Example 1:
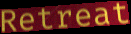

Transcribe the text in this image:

Retreat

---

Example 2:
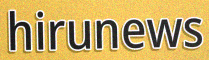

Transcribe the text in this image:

hirunews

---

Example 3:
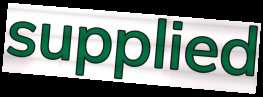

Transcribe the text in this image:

supplied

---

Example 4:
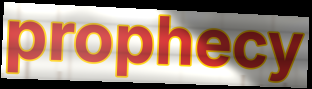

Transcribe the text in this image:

prophecy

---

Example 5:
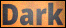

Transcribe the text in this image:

Dark